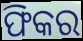
ଫିକର